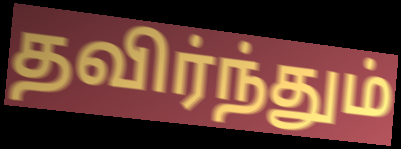
தவிர்ந்தும்